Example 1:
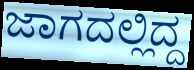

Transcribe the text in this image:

ಜಾಗದಲ್ಲಿದ್ದ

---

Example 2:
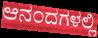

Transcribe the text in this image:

ಆನಂದಗಳಲ್ಲಿ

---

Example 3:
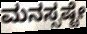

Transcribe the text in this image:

ಮನಸ್ಸಷ್ಟೇ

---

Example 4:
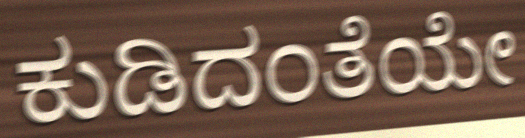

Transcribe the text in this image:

ಕುಡಿದಂತೆಯೇ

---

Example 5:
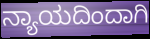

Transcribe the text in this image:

ನ್ಯಾಯದಿಂದಾಗಿ